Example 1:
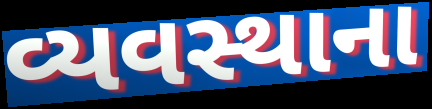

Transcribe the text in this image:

વ્યવસ્થાના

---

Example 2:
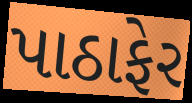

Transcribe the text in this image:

પાઠાફેર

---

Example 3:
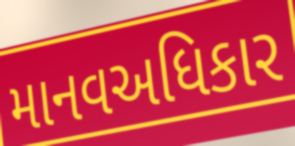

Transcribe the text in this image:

માનવઅધિકાર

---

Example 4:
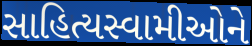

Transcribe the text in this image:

સાહિત્યસ્વામીઓને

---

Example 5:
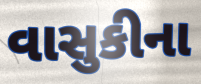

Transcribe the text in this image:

વાસુકીના